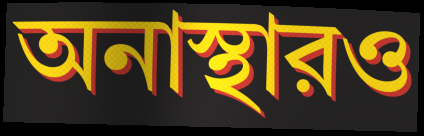
অনাস্থারও